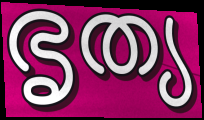
ഭൃത്യ